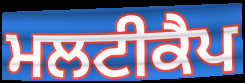
ਮਲਟੀਕੈਪ